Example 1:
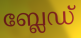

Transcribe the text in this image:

ബ്ലേഡ്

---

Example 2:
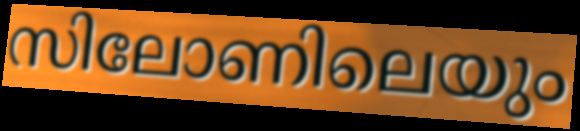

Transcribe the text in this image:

സിലോണിലെയും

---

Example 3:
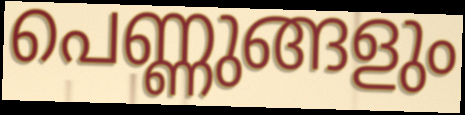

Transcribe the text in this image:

പെണ്ണുങ്ങളും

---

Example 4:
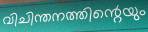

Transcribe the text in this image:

വിചിന്തനത്തിന്റെയും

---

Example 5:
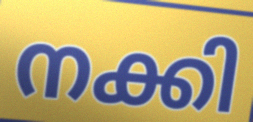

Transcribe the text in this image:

നക്കി